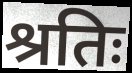
श्रतिः